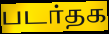
படர்தக